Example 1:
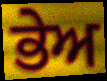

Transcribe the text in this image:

ਭੇਅ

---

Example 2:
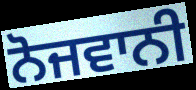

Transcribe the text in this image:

ਨੋਜਵਾਨੀ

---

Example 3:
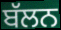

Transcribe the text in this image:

ਬੱਲਨ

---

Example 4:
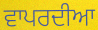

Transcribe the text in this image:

ਵਾਪਰਦੀਆ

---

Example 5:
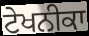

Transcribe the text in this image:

ਟੇਖਨੀਕਾ